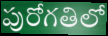
పురోగతిలో